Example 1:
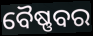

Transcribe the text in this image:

ବୈଷ୍ଣବର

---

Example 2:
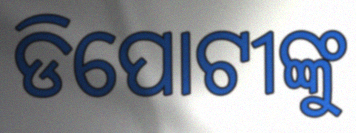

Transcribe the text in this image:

ଡିପୋଟୀଙ୍କୁ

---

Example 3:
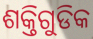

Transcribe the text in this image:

ଶକ୍ତିଗୁଡିକ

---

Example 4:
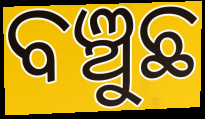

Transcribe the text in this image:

ବଞ୍ଚୁଛ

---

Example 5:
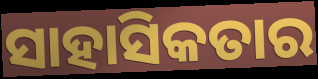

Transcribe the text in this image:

ସାହାସିକତାର